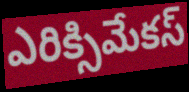
ఎరిక్సిమేకస్